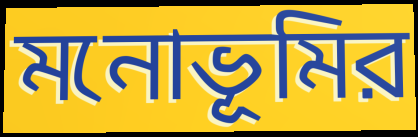
মনোভূমির